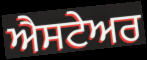
ਐਸਟੇਅਰ